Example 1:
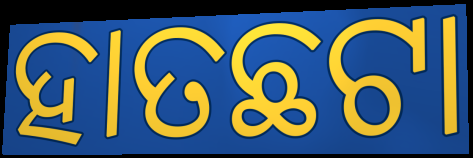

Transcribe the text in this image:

ହାତଛଟା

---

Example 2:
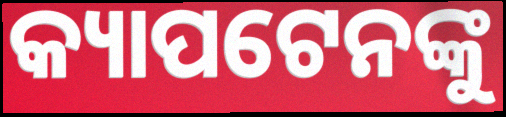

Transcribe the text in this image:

କ୍ୟାପଟେନଙ୍କୁ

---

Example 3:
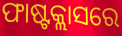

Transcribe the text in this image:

ଫାଷ୍ଟକ୍ଲାସରେ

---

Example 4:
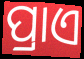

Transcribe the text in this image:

ପ୍ରାଏ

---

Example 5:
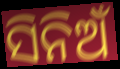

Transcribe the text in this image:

ସିନିଅଁ